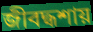
জীবদ্ধশায়